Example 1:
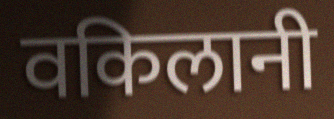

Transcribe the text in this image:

वकिलानी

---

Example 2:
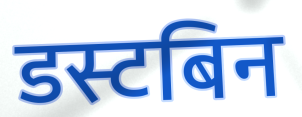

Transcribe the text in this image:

डस्टबिन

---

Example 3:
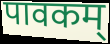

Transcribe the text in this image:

पावकम्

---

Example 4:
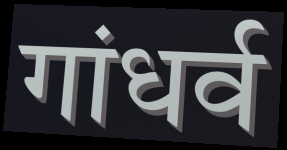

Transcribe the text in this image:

गांधर्व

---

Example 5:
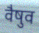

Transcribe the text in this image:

वैषुव